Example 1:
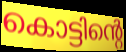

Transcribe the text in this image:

കൊട്ടിന്റെ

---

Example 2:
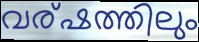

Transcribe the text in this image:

വര്ഷത്തിലും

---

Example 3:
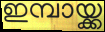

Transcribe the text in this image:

ഇമ്പായ്ക്ക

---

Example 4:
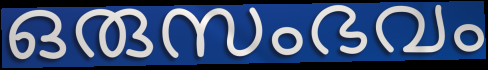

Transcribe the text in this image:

ഒരുസംഭവം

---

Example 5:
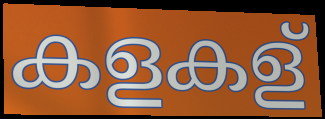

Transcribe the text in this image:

കളകള്